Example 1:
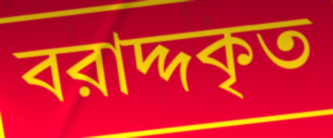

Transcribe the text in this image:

বরাদ্দকৃত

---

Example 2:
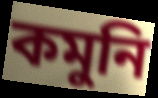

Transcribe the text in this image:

কমুনি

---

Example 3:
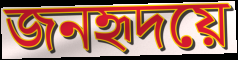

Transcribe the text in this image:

জনহৃদয়ে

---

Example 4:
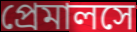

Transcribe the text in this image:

প্রেমালসে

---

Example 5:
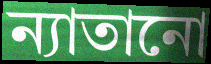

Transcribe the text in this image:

ন্যাতানো